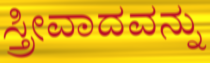
ಸ್ತ್ರೀವಾದವನ್ನು